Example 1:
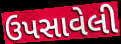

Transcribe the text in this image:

ઉપસાવેલી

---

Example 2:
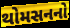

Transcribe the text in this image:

થોમસનનો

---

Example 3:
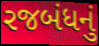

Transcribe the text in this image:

રજબંધનું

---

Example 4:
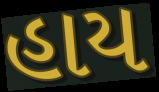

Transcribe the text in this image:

હાય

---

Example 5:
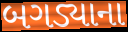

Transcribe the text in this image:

બગડ્યાના